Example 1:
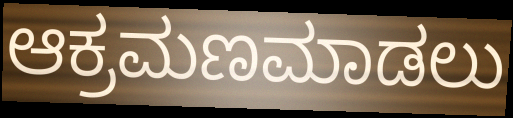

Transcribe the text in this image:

ಆಕ್ರಮಣಮಾಡಲು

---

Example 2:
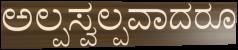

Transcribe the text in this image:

ಅಲ್ಪಸ್ವಲ್ಪವಾದರೂ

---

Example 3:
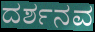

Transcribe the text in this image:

ದರ್ಶನವ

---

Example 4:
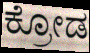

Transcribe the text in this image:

ಕ್ರೋಡ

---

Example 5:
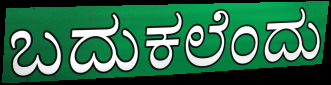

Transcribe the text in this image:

ಬದುಕಲೆಂದು